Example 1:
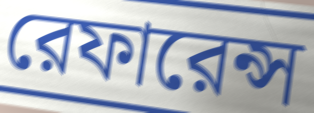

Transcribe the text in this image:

রেফারেন্স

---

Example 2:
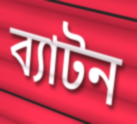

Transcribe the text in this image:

ব্যাটন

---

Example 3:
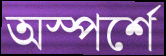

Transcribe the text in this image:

অস্পর্শে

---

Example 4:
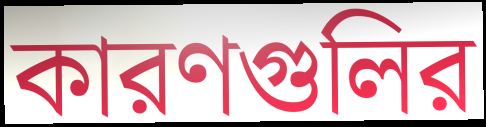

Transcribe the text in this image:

কারণগুলির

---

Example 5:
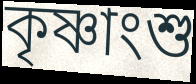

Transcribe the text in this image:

কৃষ্ণাংশু